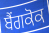
ਬੈਂਗਕੋਕ